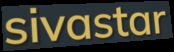
sivastar